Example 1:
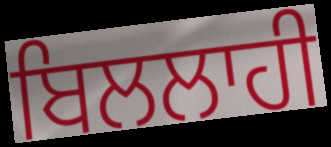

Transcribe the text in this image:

ਬਿਲਲਾਹੀ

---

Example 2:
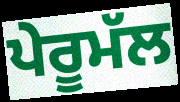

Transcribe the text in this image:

ਪੇਰੂਮੱਲ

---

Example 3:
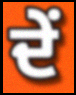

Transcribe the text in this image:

ਦੇਂ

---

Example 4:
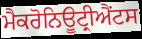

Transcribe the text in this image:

ਮੈਕਰੋਨਿਊਟ੍ਰੀਐਂਟਸ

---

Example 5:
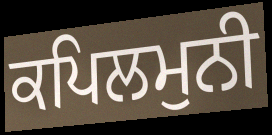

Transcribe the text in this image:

ਕਪਿਲਮੁਨੀ